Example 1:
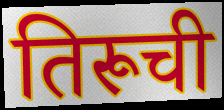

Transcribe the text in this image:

तिरूची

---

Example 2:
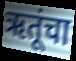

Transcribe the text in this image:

ऋतूंचा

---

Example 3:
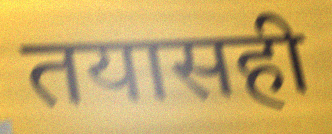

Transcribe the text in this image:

तयासही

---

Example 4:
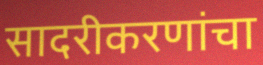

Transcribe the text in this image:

सादरीकरणांचा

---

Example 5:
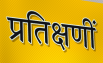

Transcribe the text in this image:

प्रतिक्षणीं